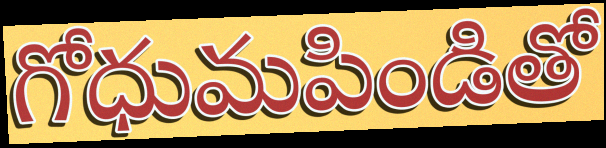
గోధుమపిండితో